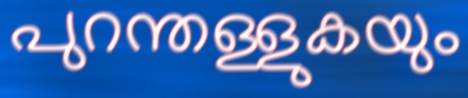
പുറന്തള്ളുകയും